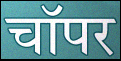
चॉपर